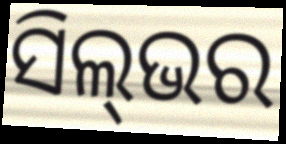
ସିଲ୍‌ଭର